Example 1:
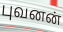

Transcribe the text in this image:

புவனன்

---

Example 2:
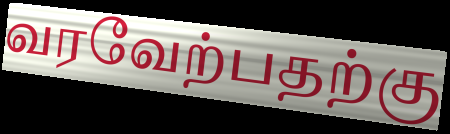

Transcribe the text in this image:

வரவேற்பதற்கு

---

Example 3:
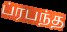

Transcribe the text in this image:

ப்ரபந்த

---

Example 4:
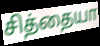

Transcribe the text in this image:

சித்தையா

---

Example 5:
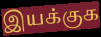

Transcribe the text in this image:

இயக்குக